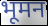
भूमन